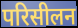
परिसीलन